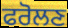
ਫਰੋਲਣ